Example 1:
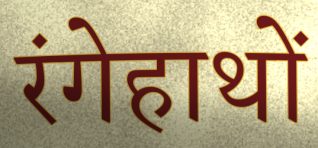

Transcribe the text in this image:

रंगेहाथों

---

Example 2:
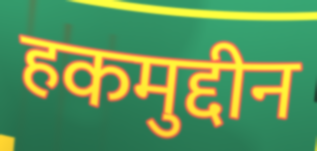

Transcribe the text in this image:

हकमुद्दीन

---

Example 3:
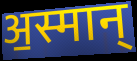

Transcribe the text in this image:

अ॒स्मान्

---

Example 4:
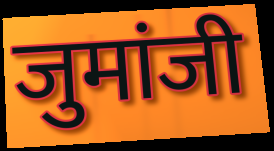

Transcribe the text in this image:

जुमांजी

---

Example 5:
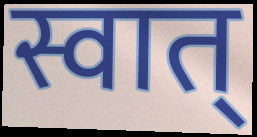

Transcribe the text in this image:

स्वात्